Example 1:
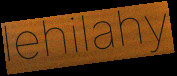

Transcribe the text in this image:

lehilahy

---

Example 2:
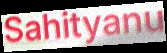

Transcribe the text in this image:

Sahityanu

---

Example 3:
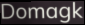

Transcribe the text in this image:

Domagk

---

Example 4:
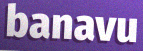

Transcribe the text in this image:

banavu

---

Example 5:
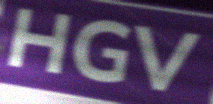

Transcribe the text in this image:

HGV